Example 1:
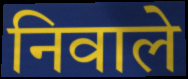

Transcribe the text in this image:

निवाले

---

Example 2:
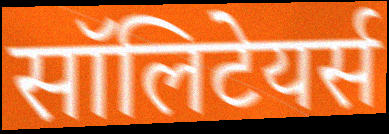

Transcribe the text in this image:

सॉलिटेयर्स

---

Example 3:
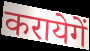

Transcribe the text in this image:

करायेगें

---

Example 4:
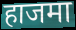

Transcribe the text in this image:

हाजमा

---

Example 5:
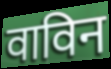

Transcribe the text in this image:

वाविन